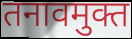
तनावमुक्त